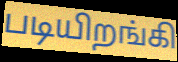
படியிறங்கி